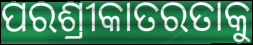
ପରଶ୍ରୀକାତରତାକୁ